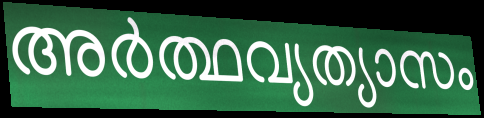
അർത്ഥവ്യത്യാസം